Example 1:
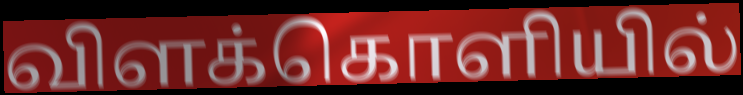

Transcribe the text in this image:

விளக்கொளியில்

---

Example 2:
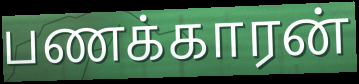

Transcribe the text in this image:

பணக்காரன்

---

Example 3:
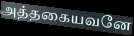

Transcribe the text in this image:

அத்தகையவனே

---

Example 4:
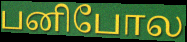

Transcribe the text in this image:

பனிபோல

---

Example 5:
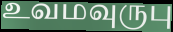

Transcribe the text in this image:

உவமவுருபு